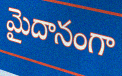
మైదానంగా